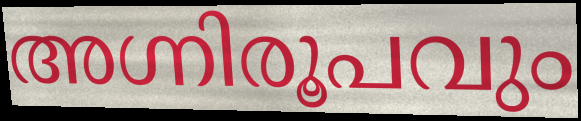
അഗ്നിരൂപവും